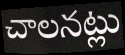
చాలనట్లు